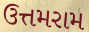
ઉત્તમરામ